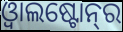
ଓ୍ୱାଲଷ୍ଟୋନ୍‌ର